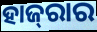
ହାଜ୍‌ରାର